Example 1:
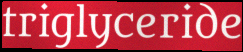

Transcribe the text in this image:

triglyceride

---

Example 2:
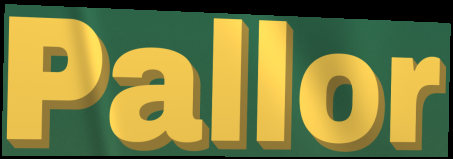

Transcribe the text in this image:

Pallor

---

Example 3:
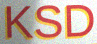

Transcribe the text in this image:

KSD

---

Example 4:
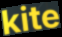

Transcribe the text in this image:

kite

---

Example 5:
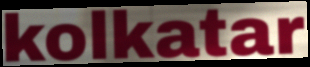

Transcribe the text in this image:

kolkatar